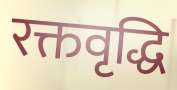
रक्तवृद्धि